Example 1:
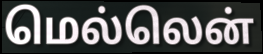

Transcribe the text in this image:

மெல்லென்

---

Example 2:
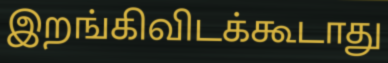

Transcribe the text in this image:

இறங்கிவிடக்கூடாது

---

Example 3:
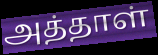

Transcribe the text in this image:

அத்தாள்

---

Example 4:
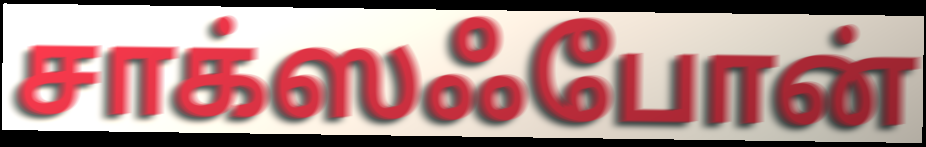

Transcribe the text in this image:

சாக்ஸஃபோன்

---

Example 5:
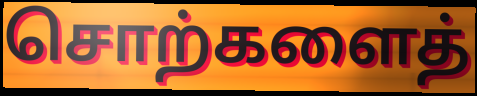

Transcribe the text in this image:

சொற்களைத்